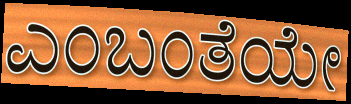
ಎಂಬಂತೆಯೇ